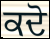
ਕਦੋ